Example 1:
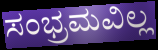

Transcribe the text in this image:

ಸಂಭ್ರಮವಿಲ್ಲ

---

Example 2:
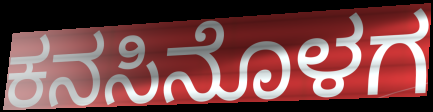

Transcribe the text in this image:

ಕನಸಿನೊಳಗ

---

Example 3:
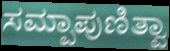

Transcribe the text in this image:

ಸಮ್ಪಾಪುಣಿತ್ವಾ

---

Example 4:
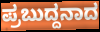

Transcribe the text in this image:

ಪ್ರಬುದ್ದನಾದ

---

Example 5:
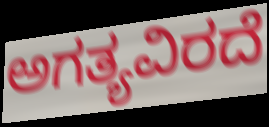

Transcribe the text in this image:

ಅಗತ್ಯವಿರದೆ